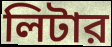
লিটার